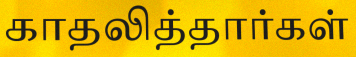
காதலித்தார்கள்